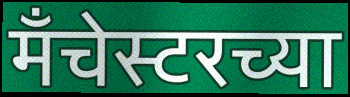
मँचेस्टरच्या